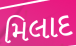
મિલાદ